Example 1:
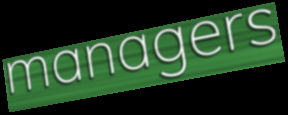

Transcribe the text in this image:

managers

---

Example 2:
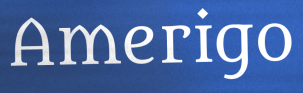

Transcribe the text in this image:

Amerigo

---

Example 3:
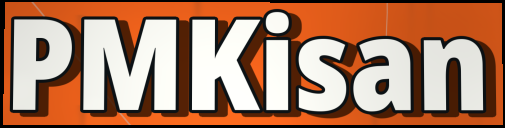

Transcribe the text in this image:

PMKisan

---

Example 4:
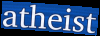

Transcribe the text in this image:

atheist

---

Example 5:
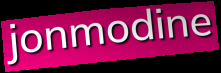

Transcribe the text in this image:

jonmodine